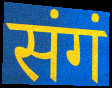
संगं